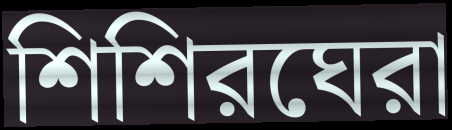
শিশিরঘেরা